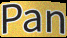
Pan